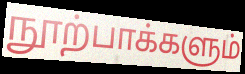
நூற்பாக்களும்